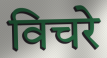
विचरे